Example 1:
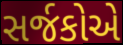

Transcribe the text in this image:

સર્જકોએ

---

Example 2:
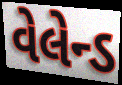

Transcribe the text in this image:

વેલેન્ડ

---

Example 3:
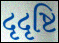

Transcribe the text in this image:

દૃદૃષ્ટિ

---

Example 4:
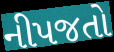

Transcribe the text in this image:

નીપજતો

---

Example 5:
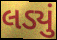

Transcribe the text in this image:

લડ્યું